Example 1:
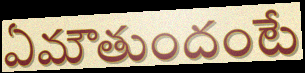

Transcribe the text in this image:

ఏమౌతుందంటే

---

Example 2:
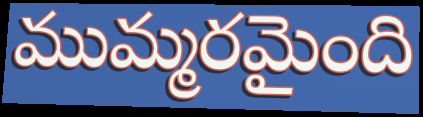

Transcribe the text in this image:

ముమ్మరమైంది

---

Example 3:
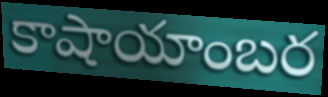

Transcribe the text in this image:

కాషాయాంబర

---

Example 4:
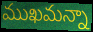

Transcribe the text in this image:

ముఖమన్నా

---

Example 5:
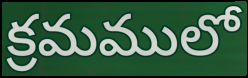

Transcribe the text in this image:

క్రమములో